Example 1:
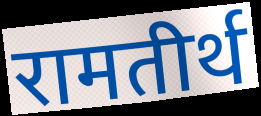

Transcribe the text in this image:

रामतीर्थ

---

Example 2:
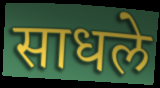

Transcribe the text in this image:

साधले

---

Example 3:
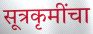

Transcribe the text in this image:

सूत्रकृमींचा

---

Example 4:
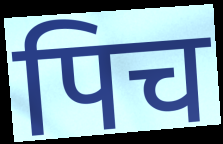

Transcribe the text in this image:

पिच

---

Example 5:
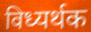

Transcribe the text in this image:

विध्यर्थक